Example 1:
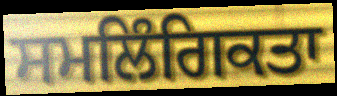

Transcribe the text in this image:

ਸਮਲਿੰਗਿਕਤਾ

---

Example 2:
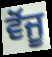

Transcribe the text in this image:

ਵੋਂਜੂ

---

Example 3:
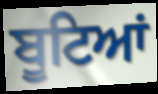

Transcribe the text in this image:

ਬੂਟਿਆਂ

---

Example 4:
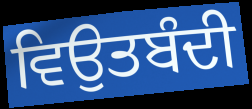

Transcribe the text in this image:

ਵਿਉਤਬੰਦੀ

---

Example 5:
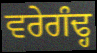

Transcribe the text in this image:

ਵਰੇਗੰਢ੍ਹ